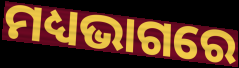
ମଧ୍ୟଭାଗରେ